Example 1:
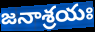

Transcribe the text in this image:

జనాశ్రయః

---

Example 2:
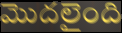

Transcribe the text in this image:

మొదలైంది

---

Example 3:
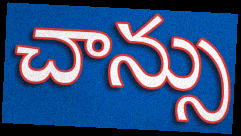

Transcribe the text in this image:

చాన్సు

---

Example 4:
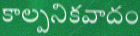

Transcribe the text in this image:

కాల్పనికవాదం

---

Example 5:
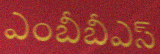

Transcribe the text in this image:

ఎంబీబీఎస్